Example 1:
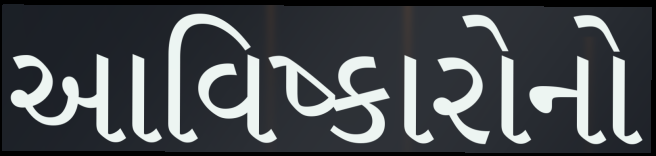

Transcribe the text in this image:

આવિષ્કારોનો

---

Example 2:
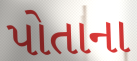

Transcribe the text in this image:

પોતાના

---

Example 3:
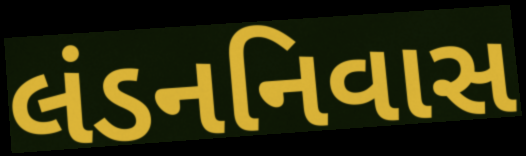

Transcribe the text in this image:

લંડનનિવાસ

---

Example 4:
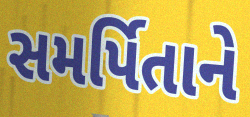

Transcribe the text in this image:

સમર્પિતાને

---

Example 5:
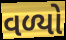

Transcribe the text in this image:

વળ્યો